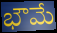
భౌమే